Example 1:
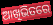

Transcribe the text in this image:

ଆଖିଭିତରେ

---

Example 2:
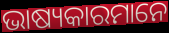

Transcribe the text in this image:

ଭାଷ୍ୟକାରମାନେ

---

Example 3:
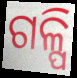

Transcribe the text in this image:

ଗଳ୍ପି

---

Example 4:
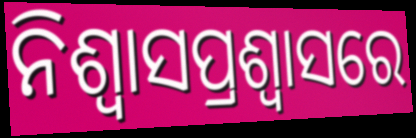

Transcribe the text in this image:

ନିଶ୍ୱାସପ୍ରଶ୍ୱାସରେ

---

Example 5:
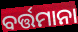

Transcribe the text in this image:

ବର୍ତ୍ତମାନା